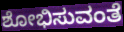
ಶೋಭಿಸುವಂತೆ